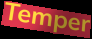
Temper